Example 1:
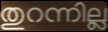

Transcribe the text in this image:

തുറന്നില്ല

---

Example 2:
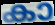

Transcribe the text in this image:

കാ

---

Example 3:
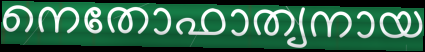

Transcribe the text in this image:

നെതോഫാത്യനായ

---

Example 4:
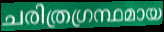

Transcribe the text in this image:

ചരിത്രഗ്രന്ഥമായ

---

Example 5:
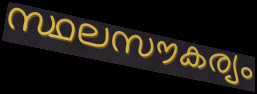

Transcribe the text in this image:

സ്ഥലസൗകര്യം